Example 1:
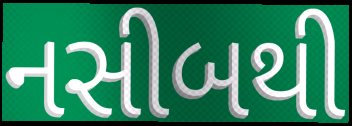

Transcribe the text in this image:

નસીબથી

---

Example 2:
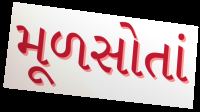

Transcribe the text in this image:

મૂળસોતાં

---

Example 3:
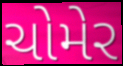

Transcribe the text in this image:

ચોમેર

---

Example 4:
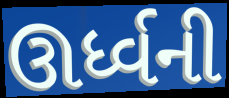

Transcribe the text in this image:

ઊર્ધ્વની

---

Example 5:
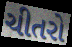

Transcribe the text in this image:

ચીતરો